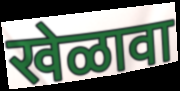
खेळावा